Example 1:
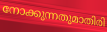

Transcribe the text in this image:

നോക്കുന്നതുമാതിരി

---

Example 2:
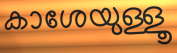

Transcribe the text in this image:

കാശേയുള്ളൂ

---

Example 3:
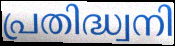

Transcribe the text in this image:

പ്രതിദ്ധ്വനി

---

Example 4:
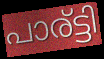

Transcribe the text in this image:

പാര്ട്ടി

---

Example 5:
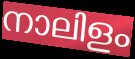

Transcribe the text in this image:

നാലിളം